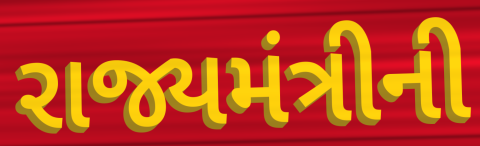
રાજ્યમંત્રીની